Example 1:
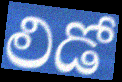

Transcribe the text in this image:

లిడో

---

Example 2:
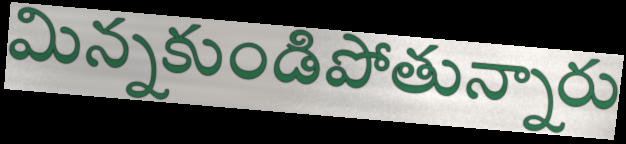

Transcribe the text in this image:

మిన్నకుండిపోతున్నారు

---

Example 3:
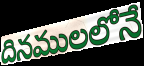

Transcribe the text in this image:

దినములలోనే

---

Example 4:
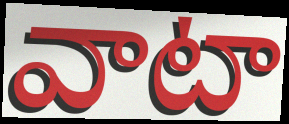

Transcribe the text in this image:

వాటా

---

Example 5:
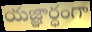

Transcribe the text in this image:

యజ్ఞార్ధంగా